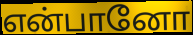
என்பானோ